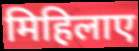
मिहिलाए